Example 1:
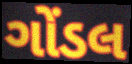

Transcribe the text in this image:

ગોંડલ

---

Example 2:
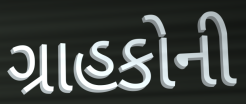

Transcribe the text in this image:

ગ્રાહકોની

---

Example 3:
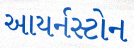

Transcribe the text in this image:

આયર્નસ્ટોન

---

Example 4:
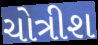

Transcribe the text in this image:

ચોત્રીશ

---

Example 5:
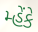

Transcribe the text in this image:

મ્હેંકે